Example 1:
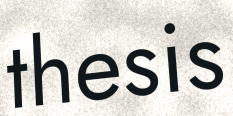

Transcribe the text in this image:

thesis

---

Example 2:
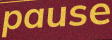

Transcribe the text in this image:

pause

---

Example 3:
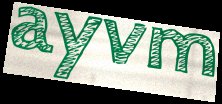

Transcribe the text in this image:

ayvm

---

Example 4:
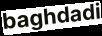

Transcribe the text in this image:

baghdadi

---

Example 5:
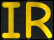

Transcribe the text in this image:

IR